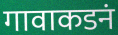
गावाकडनं